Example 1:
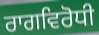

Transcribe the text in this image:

ਰਾਗਵਿਰੋਧੀ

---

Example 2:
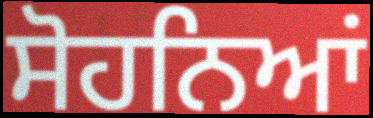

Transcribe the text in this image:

ਸੋਹਨਿਆਂ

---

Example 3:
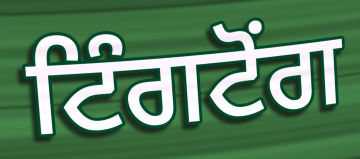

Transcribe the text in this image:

ਟਿੰਗਟੋਂਗ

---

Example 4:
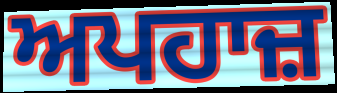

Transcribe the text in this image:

ਅਪਹਾਜ਼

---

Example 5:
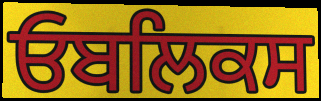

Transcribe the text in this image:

ਓਬਲਿਕਸ